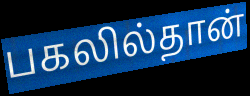
பகலில்தான்